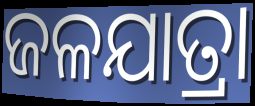
ଜଳଯାତ୍ରା